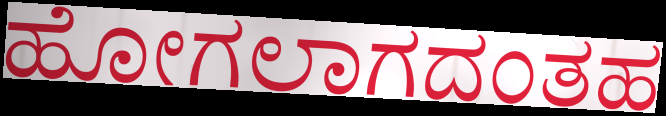
ಹೋಗಲಾಗದಂತಹ